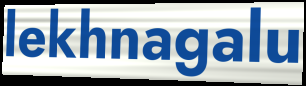
lekhnagalu